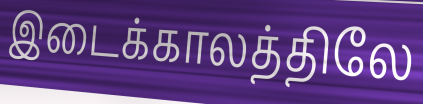
இடைக்காலத்திலே